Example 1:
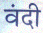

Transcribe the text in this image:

वंदी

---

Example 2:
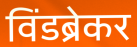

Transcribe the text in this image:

विंडब्रेकर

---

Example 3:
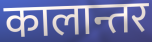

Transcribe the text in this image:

कालान्तर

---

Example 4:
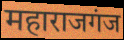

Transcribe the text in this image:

महाराजगंज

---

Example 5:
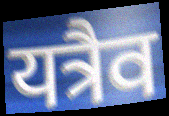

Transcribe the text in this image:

यत्रैव